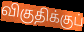
விகுதிக்குப்